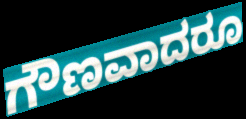
ಗೌಣವಾದರೂ